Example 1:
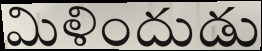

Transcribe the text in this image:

మిళిందుడు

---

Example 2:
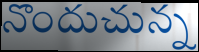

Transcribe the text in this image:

నొందుచున్న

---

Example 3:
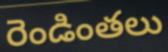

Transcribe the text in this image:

రెండింతలు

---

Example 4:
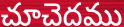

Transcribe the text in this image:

చూచెదము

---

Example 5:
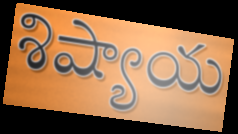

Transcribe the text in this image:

శిష్యాయ